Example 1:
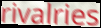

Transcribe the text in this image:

rivalries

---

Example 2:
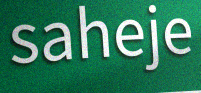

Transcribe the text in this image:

saheje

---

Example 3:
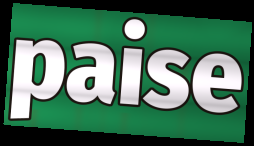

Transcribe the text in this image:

paise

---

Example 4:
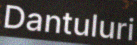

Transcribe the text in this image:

Dantuluri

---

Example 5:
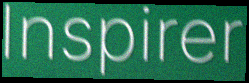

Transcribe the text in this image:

Inspirer